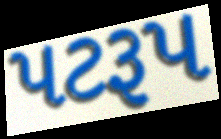
પટરૂપ